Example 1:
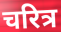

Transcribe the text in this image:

चरित्र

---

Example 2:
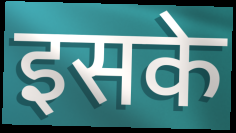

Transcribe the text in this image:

इसके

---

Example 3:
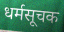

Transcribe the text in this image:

धर्मसूचक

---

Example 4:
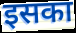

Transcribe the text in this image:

इसका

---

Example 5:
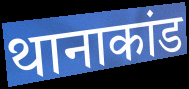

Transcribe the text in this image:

थानाकांड